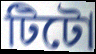
টিটো